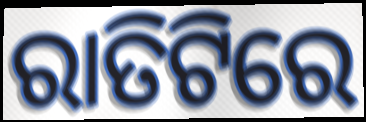
ରାତିଟିରେ